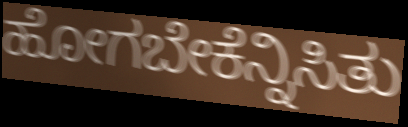
ಹೋಗಬೇಕೆನ್ನಿಸಿತು